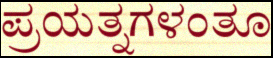
ಪ್ರಯತ್ನಗಳಂತೂ